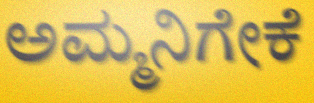
ಅಮ್ಮನಿಗೇಕೆ